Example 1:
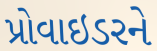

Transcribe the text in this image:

પ્રોવાઇડરને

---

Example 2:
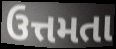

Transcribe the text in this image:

ઉત્તમતા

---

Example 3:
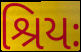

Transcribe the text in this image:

શ્રિયઃ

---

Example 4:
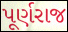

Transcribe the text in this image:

પૂર્ણરાજ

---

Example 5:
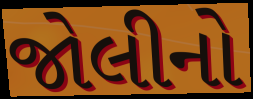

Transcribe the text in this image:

જોલીનો